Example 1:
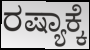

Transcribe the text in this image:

ರಷ್ಯಾಕ್ಕೆ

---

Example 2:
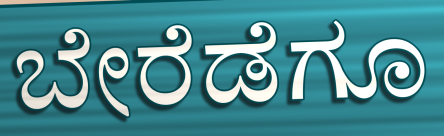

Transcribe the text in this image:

ಬೇರೆಡೆಗೂ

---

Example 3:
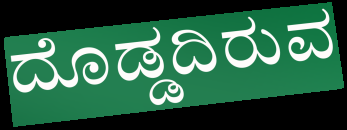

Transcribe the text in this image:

ದೊಡ್ಡದಿರುವ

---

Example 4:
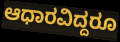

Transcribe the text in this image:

ಆಧಾರವಿದ್ದರೂ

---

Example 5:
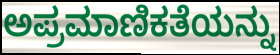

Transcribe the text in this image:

ಅಪ್ರಮಾಣಿಕತೆಯನ್ನು